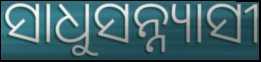
ସାଧୁସନ୍ନ୍ୟାସୀ